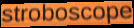
stroboscope